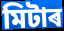
মিটাৰ